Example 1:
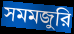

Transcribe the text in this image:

সমমজুরি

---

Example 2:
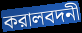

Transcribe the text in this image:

করালবদনী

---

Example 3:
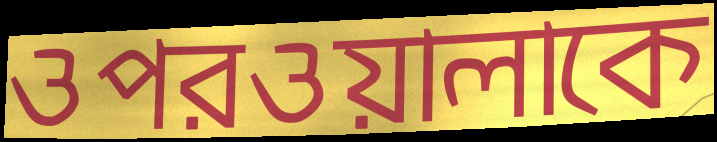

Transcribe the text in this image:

ওপরওয়ালাকে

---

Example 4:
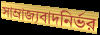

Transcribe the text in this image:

সাম্রাজ্যবাদনির্ভর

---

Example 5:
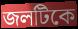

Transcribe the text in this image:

জলটিকে